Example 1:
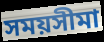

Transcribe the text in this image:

সময়সীমা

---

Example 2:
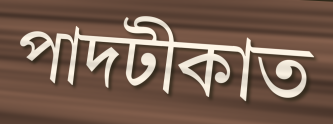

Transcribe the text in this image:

পাদটীকাত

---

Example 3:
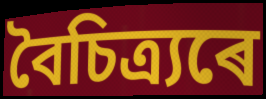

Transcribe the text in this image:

বৈচিত্ৰ্যৰে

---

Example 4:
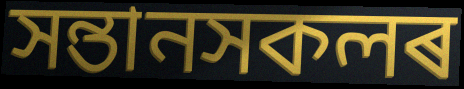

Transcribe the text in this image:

সন্তানসকলৰ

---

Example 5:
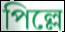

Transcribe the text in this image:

পিল্লে